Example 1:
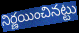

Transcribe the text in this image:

నిర్ణయించినట్టు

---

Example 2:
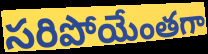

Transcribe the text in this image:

సరిపోయేంతగా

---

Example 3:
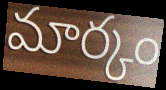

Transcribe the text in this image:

మార్కం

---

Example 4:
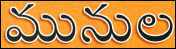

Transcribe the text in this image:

మునుల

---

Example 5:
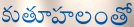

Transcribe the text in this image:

కుతూహలంతో